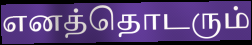
எனத்தொடரும்